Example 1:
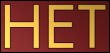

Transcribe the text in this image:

HET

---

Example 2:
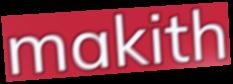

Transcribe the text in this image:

makith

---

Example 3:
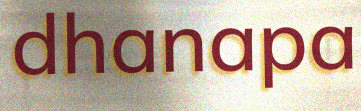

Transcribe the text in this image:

dhanapa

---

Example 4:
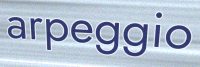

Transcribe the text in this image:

arpeggio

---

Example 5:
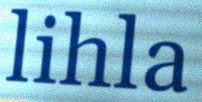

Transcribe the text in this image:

lihla